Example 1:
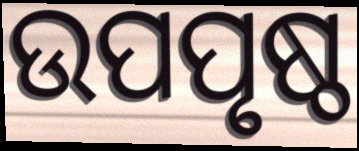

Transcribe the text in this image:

ଉପପୃଷ୍ଠ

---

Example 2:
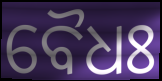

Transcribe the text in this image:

ବୈଧଃ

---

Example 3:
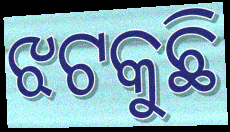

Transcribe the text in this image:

ଝଟକୁଛି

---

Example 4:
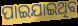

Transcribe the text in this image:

ପାଇଯାଇଥିବ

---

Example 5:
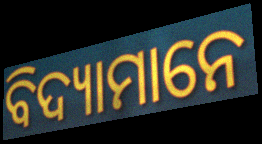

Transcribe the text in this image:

ବିଦ୍ୟାମାନେ